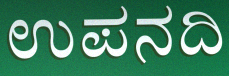
ಉಪನದಿ